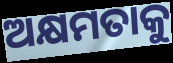
ଅକ୍ଷମତାକୁ